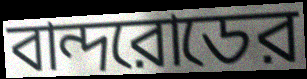
বান্দরোডের